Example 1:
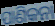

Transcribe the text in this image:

ପାଣିକନା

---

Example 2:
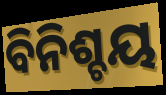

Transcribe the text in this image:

ବିନିଶ୍ଚୟ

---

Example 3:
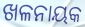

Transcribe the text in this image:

ଖଳନାୟକ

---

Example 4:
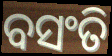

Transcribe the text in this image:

ବସଂତି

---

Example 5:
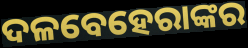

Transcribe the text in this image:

ଦଳବେହେରାଙ୍କର